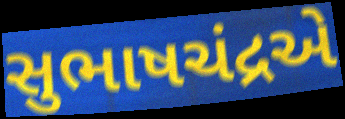
સુભાષચંદ્રએ